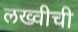
लख्वीची